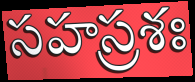
సహస్రశః